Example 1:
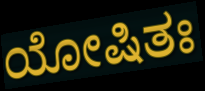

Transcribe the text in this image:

ಯೋಷಿತಃ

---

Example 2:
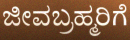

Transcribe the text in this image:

ಜೀವಬ್ರಹ್ಮರಿಗೆ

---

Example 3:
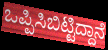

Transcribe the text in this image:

ಒಪ್ಪಿಸಿಬಿಟ್ಟಿದ್ದಾನೆ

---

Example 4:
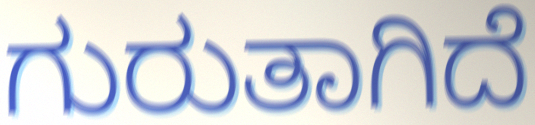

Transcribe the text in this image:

ಗುರುತಾಗಿದೆ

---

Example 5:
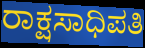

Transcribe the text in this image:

ರಾಕ್ಷಸಾಧಿಪತಿ